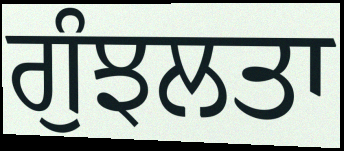
ਗੁੰਝਲਤਾ